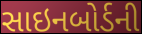
સાઇનબોર્ડની